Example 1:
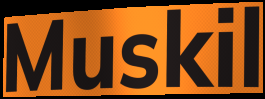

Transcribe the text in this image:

Muskil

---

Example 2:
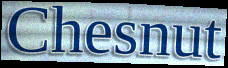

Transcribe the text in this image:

Chesnut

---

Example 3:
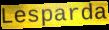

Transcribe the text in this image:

Lesparda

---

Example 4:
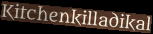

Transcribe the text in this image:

Kitchenkilladikal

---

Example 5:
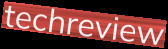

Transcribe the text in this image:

techreview